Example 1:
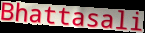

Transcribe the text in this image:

Bhattasali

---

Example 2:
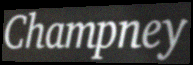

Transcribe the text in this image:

Champney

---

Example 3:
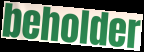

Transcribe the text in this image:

beholder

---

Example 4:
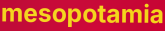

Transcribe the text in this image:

mesopotamia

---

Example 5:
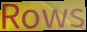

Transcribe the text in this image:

Rows